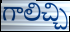
గాలిచ్చి